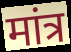
मांत्र